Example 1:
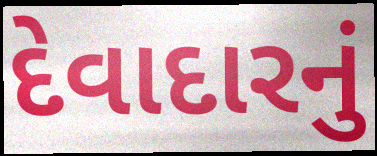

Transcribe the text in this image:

દેવાદારનું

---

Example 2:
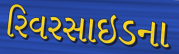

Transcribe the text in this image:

રિવરસાઇડના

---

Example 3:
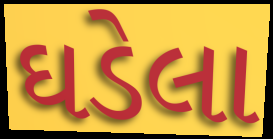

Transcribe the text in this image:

ઘડેલા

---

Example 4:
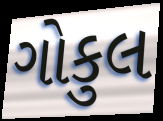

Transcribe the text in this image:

ગોકુલ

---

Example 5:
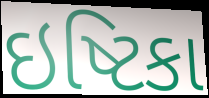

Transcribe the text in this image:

ઇષ્ટિકા